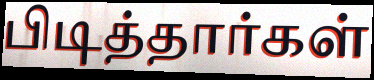
பிடித்தார்கள்